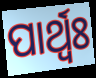
ପାର୍ଥ୍ବଃ